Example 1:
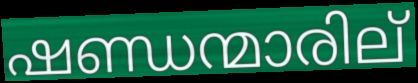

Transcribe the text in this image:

ഷണ്ഡന്മാരില്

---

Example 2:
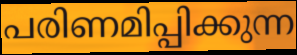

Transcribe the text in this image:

പരിണമിപ്പിക്കുന്ന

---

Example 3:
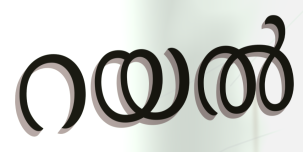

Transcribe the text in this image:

റയൽ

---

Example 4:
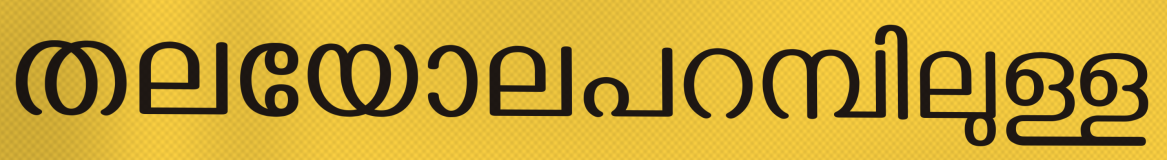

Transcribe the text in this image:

തലയോലപറമ്പിലുള്ള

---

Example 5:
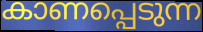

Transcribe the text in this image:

കാണപ്പെടുന്ന